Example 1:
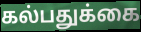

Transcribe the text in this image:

கல்பதுக்கை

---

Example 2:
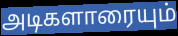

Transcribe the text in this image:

அடிகளாரையும்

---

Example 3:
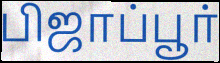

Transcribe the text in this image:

பிஜாப்பூர்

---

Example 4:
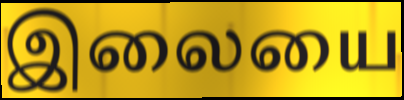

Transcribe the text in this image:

இலையை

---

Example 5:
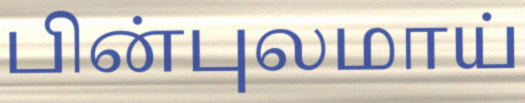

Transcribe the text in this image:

பின்புலமாய்